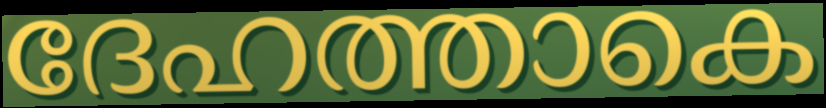
ദേഹത്താകെ